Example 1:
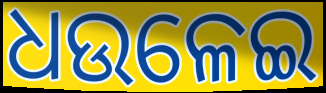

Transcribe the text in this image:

ଧଉଳେଇ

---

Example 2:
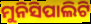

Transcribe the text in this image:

ମୁନିସିପାଲିଟି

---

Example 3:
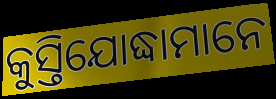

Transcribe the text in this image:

କୁସ୍ତିଯୋଦ୍ଧାମାନେ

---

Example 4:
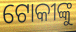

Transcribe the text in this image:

ଟୋକୀଙ୍କୁ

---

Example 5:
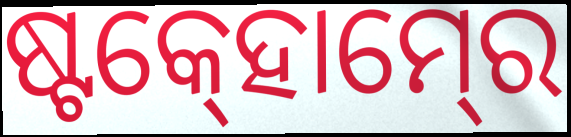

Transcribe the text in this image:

ଷ୍ଟକ୍‍ହୋମ୍‍ରେ